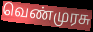
வெண்முரசு